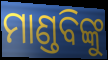
ମାଣ୍ଡବିଙ୍କୁ